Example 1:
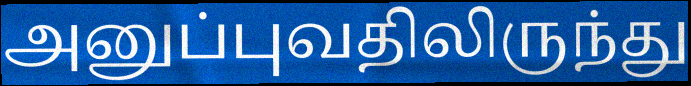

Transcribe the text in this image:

அனுப்புவதிலிருந்து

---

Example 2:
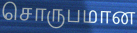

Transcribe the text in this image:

சொருபமான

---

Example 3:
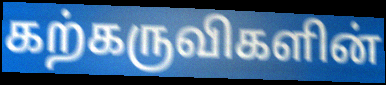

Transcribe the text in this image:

கற்கருவிகளின்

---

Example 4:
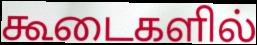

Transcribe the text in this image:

கூடைகளில்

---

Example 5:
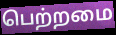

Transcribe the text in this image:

பெற்றமை